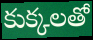
కుక్కలతో